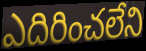
ఎదిరించలేని